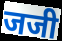
जजी